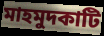
মাহমুদকাটি